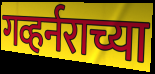
गव्हर्नराच्या